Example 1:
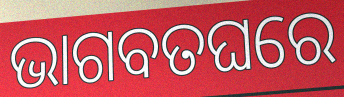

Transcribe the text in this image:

ଭାଗବତଘରେ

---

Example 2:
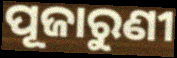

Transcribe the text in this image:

ପୂଜାରୁଣୀ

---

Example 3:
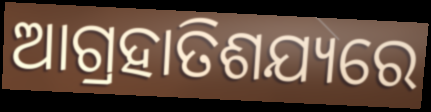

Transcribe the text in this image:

ଆଗ୍ରହାତିଶଯ୍ୟରେ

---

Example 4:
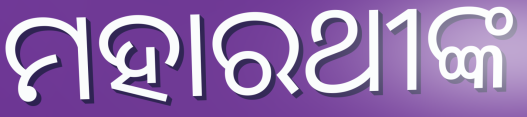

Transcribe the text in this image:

ମହାରଥୀଙ୍କ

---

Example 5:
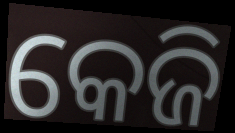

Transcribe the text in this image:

କେଜି